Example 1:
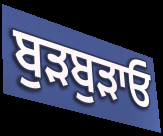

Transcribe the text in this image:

ਬੁੜਬੁੜਾਓ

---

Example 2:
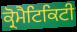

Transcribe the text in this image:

ਕ੍ਰੋਮੈਟਿਕਿਟੀ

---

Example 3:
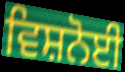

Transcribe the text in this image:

ਵਿਸ਼ਨੋਈ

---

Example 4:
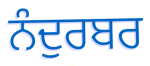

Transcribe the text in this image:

ਨੰਦੁਰਬਰ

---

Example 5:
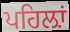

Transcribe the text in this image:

ਪਹਿਲ਼ਾਂ